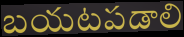
బయటపడాలి